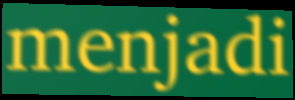
menjadi